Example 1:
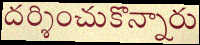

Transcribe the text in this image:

దర్శించుకొన్నారు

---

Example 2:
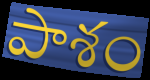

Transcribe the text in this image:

పాశం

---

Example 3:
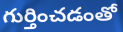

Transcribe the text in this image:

గుర్తించడంతో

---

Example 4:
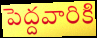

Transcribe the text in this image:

పెద్దవారికి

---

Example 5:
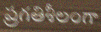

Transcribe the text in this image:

ప్రగతిశీలంగా